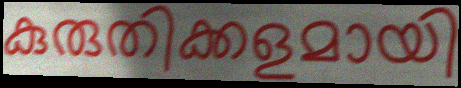
കുരുതിക്കളമായി